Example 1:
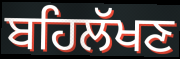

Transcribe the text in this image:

ਬਹਿਲੱਖਣ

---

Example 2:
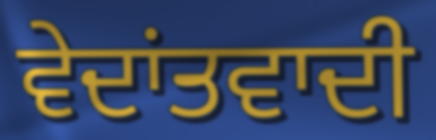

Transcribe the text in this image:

ਵੇਦਾਂਤਵਾਦੀ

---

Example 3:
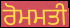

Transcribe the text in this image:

ਰੋਮਮਤੀ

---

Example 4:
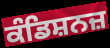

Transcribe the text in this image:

ਕੰਡਿਸ਼ਨਜ਼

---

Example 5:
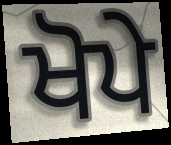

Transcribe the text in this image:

ਖੋਪੇ